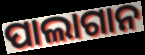
ପାଲାଗାନ